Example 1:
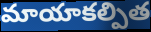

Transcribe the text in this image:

మాయాకల్పిత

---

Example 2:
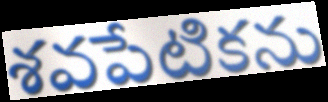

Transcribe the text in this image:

శవపేటికను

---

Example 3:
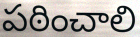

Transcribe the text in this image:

పఠించాలి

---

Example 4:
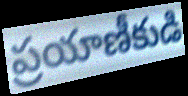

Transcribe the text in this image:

ప్రయాణీకుడి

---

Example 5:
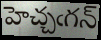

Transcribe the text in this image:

హెచ్చఁగన్